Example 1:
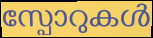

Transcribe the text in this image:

സ്പോറുകൾ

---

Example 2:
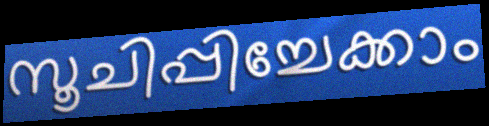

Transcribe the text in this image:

സൂചിപ്പിച്ചേക്കാം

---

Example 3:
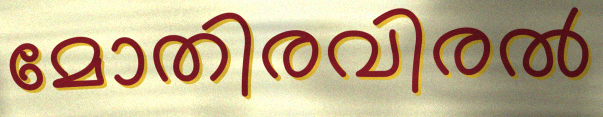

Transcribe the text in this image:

മോതിരവിരൽ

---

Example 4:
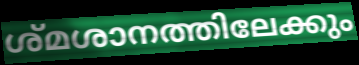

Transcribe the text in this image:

ശ്മശാനത്തിലേക്കും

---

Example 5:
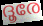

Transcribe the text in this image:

ദൂരേ